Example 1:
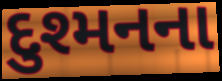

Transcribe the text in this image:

દુશ્મનના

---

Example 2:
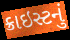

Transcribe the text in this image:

ક્રાઇસ્ટનું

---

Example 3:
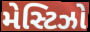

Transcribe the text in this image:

મેસ્ટિઝો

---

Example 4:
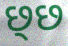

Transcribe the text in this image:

છ્છ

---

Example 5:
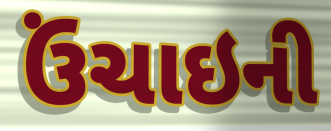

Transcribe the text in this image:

ઉંચાઇની